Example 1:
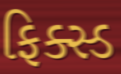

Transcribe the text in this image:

ફિક્સ્ડ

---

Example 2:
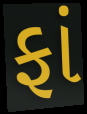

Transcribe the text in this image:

ફાં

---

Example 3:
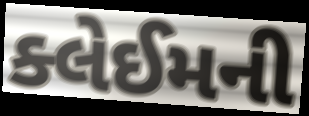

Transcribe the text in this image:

ક્લેઈમની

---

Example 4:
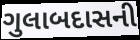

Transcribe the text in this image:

ગુલાબદાસની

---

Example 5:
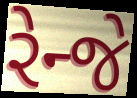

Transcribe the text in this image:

રેન્જે